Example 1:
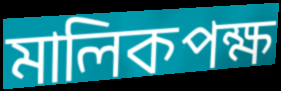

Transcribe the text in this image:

মালিকপক্ষ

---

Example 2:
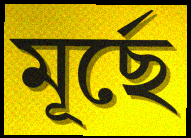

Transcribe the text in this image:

মূর্ছে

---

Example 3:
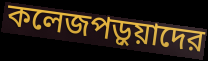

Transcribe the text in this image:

কলেজপড়ুয়াদের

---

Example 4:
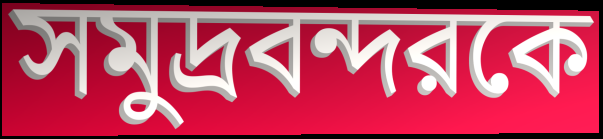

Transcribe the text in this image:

সমুদ্রবন্দরকে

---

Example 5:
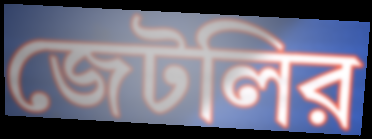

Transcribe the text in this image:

জেটলির